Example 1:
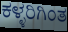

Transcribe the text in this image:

ಕಳ್ಳರಿಗಿಂತ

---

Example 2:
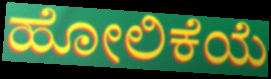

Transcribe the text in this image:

ಹೋಲಿಕೆಯೆ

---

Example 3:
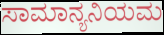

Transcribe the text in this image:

ಸಾಮಾನ್ಯನಿಯಮ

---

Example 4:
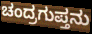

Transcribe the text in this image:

ಚಂದ್ರಗುಪ್ತನು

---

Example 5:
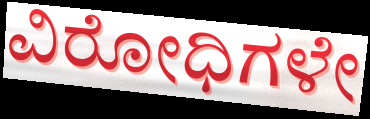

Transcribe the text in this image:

ವಿರೋಧಿಗಳೇ